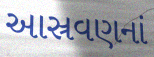
આસ્રવણનાં